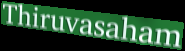
Thiruvasaham